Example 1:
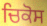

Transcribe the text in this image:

ਚਿਕੋਸ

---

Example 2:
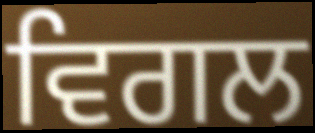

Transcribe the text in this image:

ਵਿਗਲ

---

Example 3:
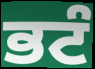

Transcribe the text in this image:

ਭਟੰ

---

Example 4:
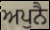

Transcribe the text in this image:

ਅਪੁਨੈ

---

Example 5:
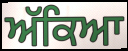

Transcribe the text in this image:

ਅੱਕਿਆ